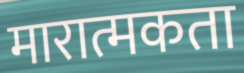
मारात्मकता